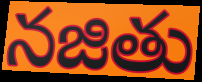
నజితు